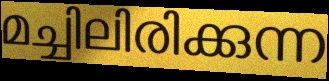
മച്ചിലിരിക്കുന്ന